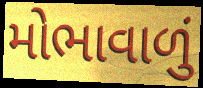
મોભાવાળું